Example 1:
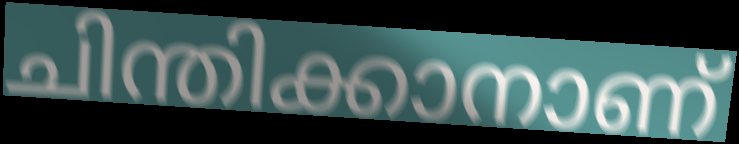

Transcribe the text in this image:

ചിന്തിക്കാനാണ്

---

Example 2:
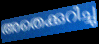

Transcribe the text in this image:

അതെക്കുറിച്ചു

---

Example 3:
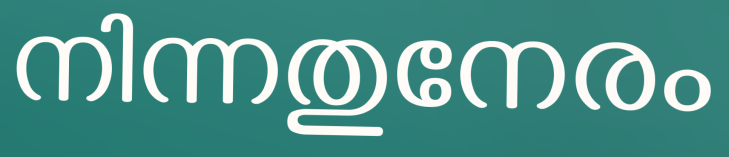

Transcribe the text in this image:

നിന്നതുനേരം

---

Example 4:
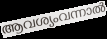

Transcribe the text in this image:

ആവശ്യംവന്നാൽ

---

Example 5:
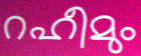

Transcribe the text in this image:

റഹീമും